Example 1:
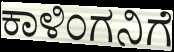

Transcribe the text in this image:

ಕಾಳಿಂಗನಿಗೆ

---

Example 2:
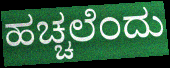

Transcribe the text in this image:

ಹಚ್ಚಲೆಂದು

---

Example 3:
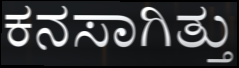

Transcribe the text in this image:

ಕನಸಾಗಿತ್ತು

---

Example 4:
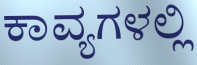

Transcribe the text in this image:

ಕಾವ್ಯಗಳಲ್ಲಿ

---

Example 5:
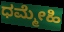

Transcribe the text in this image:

ಧಮ್ಮೇಹಿ